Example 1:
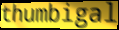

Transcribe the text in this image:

thumbigal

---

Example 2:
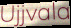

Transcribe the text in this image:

Ujjvala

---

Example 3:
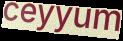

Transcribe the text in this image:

ceyyum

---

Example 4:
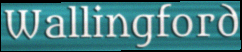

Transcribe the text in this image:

Wallingford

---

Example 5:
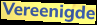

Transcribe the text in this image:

Vereenigde